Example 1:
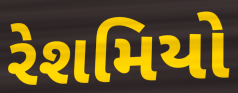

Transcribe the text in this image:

રેશમિયો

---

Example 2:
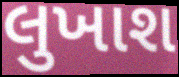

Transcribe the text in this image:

લુખાશ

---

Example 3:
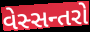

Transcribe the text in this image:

વેસ્સન્તરો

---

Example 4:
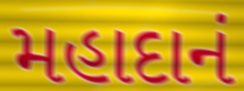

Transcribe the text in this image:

મહાદાનં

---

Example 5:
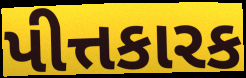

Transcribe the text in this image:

પીત્તકારક